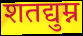
शतद्युम्न